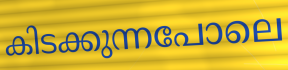
കിടക്കുന്നപോലെ